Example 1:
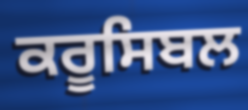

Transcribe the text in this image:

ਕਰੂਸਿਬਲ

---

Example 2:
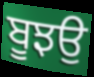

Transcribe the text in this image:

ਬੂਝਉ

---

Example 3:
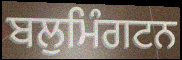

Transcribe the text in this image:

ਬਲੁਮਿੰਗਟਨ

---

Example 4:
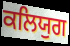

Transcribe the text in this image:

ਕਲਿਯੁਗ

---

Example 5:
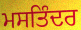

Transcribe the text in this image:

ਮਸਤਿੰਦਰ